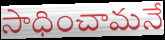
సాధించామనే